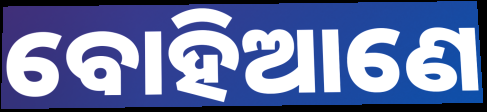
ବୋହିଆଣେ